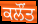
ਕਲੌਂਤ